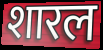
शारल